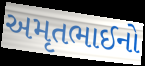
અમૃતભાઈનો